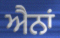
ਐਨਾਂ